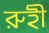
রুহী